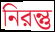
নিরন্তু